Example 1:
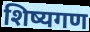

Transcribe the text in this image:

शिष्यगण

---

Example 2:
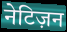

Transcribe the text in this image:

नेटिज़न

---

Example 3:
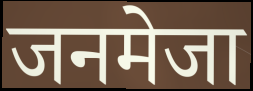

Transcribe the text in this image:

जनमेजा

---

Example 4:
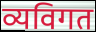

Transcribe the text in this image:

व्यविगत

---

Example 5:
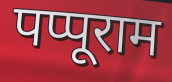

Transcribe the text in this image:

पप्पूराम